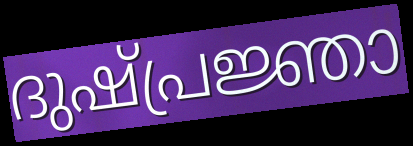
ദുഷ്പ്രജ്ഞാ